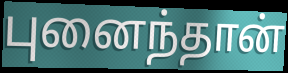
புனைந்தான்